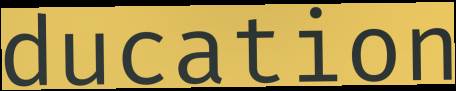
ducation